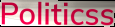
Politicss